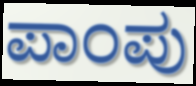
ಪಾಂಪು